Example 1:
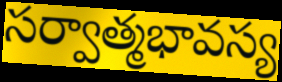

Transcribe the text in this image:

సర్వాత్మభావస్య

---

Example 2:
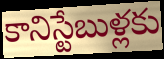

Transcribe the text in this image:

కానిస్టేబుళ్లకు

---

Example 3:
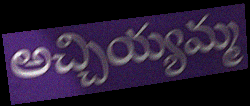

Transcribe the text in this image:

అచ్చియ్యమ్మ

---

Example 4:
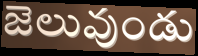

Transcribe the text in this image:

జెలువుండు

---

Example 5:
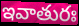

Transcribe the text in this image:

ఇవాతురః